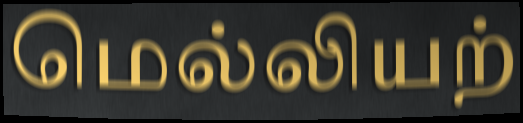
மெல்லியற்